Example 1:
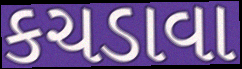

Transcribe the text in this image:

કચડાવા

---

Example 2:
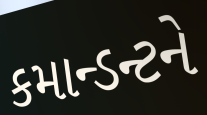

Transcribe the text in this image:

કમાન્ડન્ટને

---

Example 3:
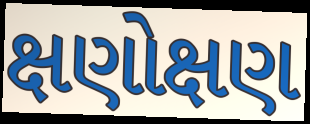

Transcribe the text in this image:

ક્ષણોક્ષણ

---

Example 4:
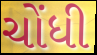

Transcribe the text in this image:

ચોંધી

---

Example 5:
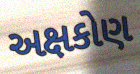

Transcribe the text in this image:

અક્ષકોણ